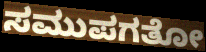
ಸಮುಪಗತೋ